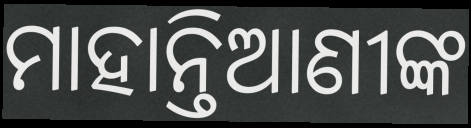
ମାହାନ୍ତିଆଣୀଙ୍କ